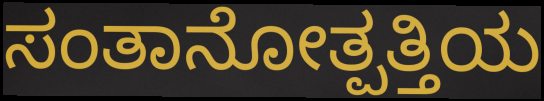
ಸಂತಾನೋತ್ಪತ್ತಿಯ